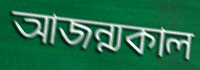
আজন্মকাল